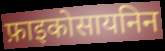
फ़ाइकोसायनिन